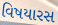
વિષયારસ